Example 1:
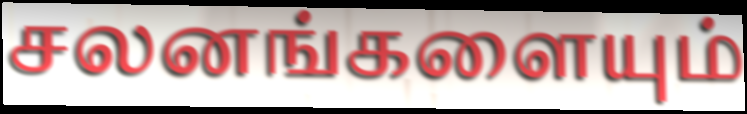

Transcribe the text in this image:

சலனங்களையும்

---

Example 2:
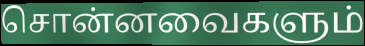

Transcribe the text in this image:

சொன்னவைகளும்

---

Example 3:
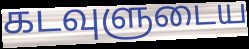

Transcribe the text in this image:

கடவுளுடைய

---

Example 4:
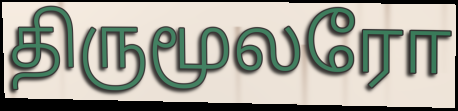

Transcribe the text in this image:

திருமூலரோ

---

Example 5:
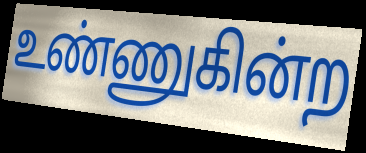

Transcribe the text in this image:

உண்ணுகின்ற